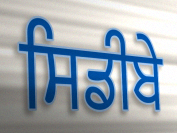
ਸਿਡੀਬੇ